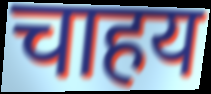
चाहय